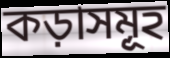
কড়াসমূহ